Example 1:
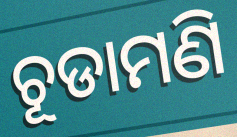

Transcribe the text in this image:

ଚୂଡାମଣି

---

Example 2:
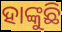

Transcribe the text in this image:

ହାଙ୍କୁଛି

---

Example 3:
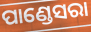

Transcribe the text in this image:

ପାଣ୍ଡେସରା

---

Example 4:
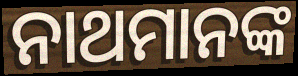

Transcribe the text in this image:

ନାଥମାନଙ୍କ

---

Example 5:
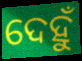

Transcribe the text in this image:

ଦେହୁଁ